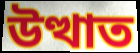
উত্থাত